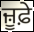
ਜ਼ੂਫ਼ੇ